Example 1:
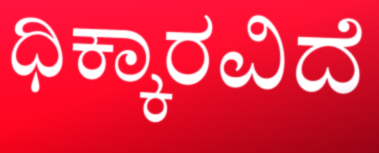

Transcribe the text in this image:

ಧಿಕ್ಕಾರವಿದೆ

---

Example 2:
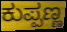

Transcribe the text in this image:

ಕುಪ್ಪಣ್ಣ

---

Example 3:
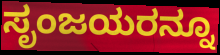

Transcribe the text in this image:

ಸೃಂಜಯರನ್ನೂ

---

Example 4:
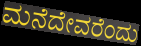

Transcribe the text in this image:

ಮನೆದೇವರೆಂದು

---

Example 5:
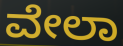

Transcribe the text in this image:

ವೇಲಾ